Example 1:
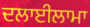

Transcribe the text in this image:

ਦਲਾਈਲਾਮਾ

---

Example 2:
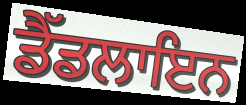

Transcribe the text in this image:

ਡੈੱਡਲਾਇਨ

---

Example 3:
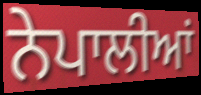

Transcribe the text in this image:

ਨੇਪਾਲੀਆਂ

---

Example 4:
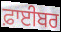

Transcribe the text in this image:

ਫ਼ਾਈਬਰ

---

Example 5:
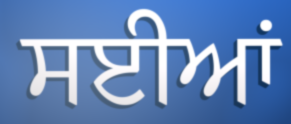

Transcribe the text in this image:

ਸਈਆਂ